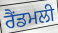
ਰੈਂਡਮਲੀ